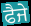
ਫੈਜੇ